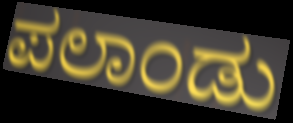
ಪಲಾಂಡು